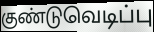
குண்டுவெடிப்பு